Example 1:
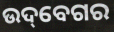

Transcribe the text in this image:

ଉଦ୍‌ବେଗର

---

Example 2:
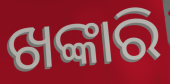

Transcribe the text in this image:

ଖଙ୍କାରି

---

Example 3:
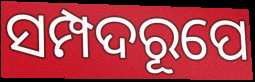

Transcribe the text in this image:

ସମ୍ପଦରୂପେ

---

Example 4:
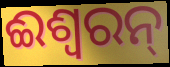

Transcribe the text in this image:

ଈଶ୍ୱରନ୍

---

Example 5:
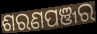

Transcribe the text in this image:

ଶରଣପଞ୍ଜର